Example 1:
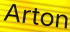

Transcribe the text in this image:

Arton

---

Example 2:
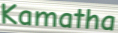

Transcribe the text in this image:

Kamatha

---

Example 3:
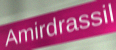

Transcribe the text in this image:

Amirdrassil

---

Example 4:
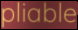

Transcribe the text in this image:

pliable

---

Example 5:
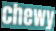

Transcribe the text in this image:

chewy